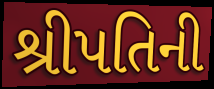
શ્રીપતિની